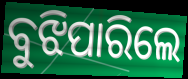
ବୁଝିପାରିଲେ